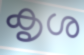
കൃശ